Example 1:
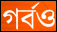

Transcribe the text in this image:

গর্বও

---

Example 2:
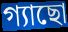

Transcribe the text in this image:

গ্যাছো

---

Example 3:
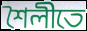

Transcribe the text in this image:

শৈলীতে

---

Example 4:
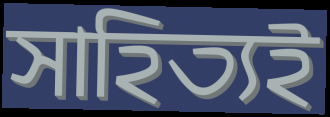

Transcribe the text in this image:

সাহিত্যই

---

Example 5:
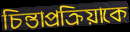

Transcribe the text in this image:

চিন্তাপ্রক্রিয়াকে